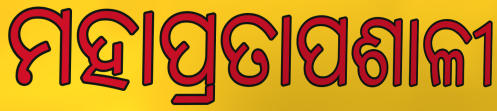
ମହାପ୍ରତାପଶାଳୀ